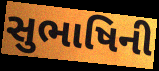
સુભાષિની